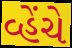
વ્હેંચે